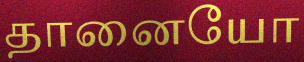
தானையோ